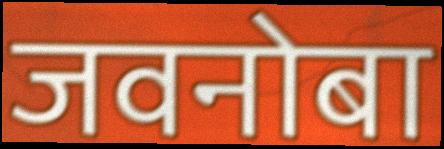
जवनोबा